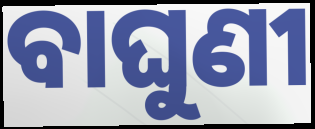
ବାଘୁଣୀ